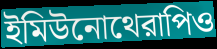
ইমিউনোথেরাপিও